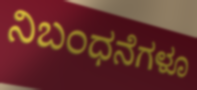
ನಿಬಂಧನೆಗಳೂ